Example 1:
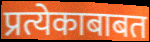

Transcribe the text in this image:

प्रत्येकाबाबत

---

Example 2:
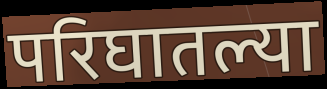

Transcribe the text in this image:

परिघातल्या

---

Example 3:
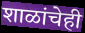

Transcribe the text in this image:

शाळांचेही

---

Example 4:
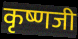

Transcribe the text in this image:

कृष्णजी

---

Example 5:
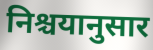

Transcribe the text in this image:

निश्चयानुसार